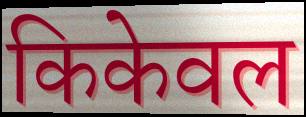
किकेवल